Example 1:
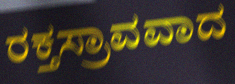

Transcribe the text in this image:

ರಕ್ತಸ್ರಾವವಾದ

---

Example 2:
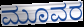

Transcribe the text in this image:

ಮೂವರ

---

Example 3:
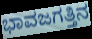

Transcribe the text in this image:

ಭಾವಜಗತ್ತಿನ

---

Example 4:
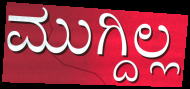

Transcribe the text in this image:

ಮುಗ್ದಿಲ್ಲ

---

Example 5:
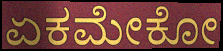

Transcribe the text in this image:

ಏಕಮೇಕೋ